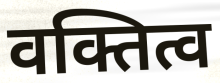
वक्तित्व